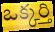
ఒక్కర్తి